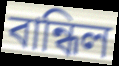
বান্ধিল